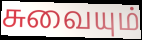
சுவையும்